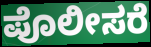
ಪೊಲೀಸರೆ